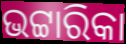
ଭଟ୍ଟାରିକା